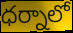
ధర్నాలో